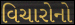
વિચારોનો